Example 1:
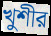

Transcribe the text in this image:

খুশীর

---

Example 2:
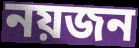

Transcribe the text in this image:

নয়জন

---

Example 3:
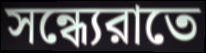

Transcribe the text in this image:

সন্ধ্যেরাতে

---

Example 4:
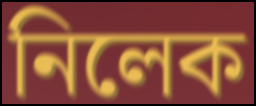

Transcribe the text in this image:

নিলেক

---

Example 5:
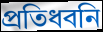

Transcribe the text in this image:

প্রতিধবনি